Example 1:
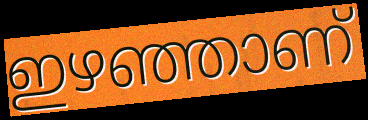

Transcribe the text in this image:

ഇഴഞ്ഞാണ്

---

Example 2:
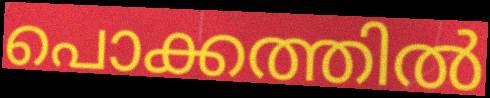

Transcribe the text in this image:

പൊക്കത്തിൽ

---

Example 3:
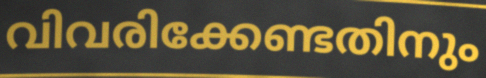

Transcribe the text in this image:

വിവരിക്കേണ്ടതിനും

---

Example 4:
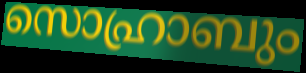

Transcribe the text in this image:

സൊഹ്രാബും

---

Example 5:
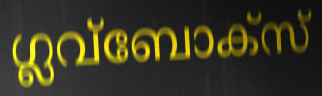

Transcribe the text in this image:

ഗ്ലവ്ബോക്സ്